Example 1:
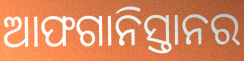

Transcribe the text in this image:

ଆଫଗାନିସ୍ତାନର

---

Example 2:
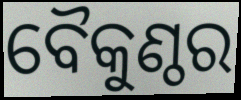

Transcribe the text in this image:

ବୈକୁଣ୍ଠର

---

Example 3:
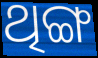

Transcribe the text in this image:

ଥିଙ୍ଗ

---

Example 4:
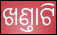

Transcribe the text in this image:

ଖଣ୍ତାଟି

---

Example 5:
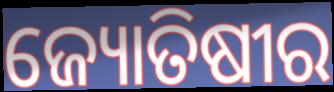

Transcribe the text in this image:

ଜ୍ୟୋତିଷୀର